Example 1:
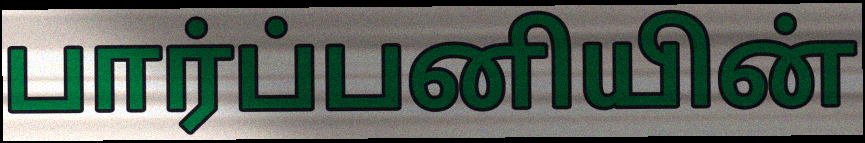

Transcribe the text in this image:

பார்ப்பனியின்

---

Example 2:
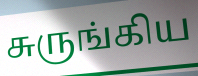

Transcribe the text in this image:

சுருங்கிய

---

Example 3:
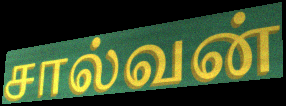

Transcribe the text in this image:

சால்வன்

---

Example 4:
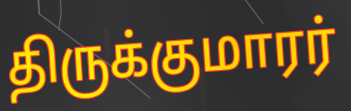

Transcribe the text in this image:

திருக்குமாரர்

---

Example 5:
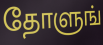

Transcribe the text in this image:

தோளுங்